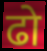
ढो